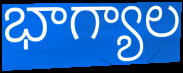
భాగ్యాల